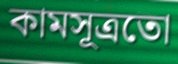
কামসূত্ৰতো